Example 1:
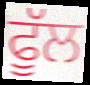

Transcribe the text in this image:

ਫੂੱਲ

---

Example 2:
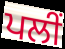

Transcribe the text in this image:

ਪਲੀਂ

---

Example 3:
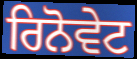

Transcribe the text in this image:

ਰਿਨੋਵੇਟ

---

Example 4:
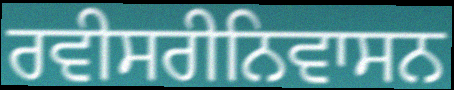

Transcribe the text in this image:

ਰਵੀਸਰੀਨਿਵਾਸਨ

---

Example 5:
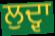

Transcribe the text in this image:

ਲੁਦ੍ਦਾ